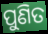
ପୁଣିତ